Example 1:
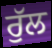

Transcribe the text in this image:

ਰੁੱਲ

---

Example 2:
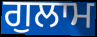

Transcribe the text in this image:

ਗੁਲਾਮ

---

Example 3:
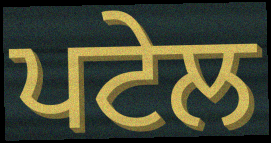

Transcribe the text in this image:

ਪਟੇਲ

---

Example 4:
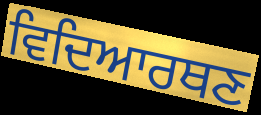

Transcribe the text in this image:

ਵਿਦਿਆਰਥਣ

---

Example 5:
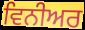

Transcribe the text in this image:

ਵਿਨੀਅਰ